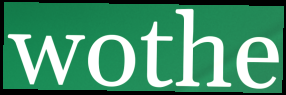
wothe